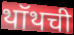
थॉथची